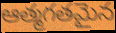
ఆత్మగతమైన